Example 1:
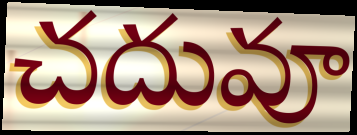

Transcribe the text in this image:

చదువూ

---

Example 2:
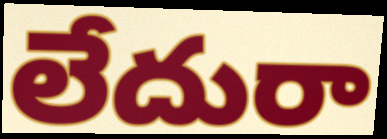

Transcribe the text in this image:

లేదురా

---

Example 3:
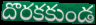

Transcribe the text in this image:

దొరకకుండ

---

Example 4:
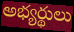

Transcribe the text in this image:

అభ్యర్థులు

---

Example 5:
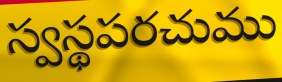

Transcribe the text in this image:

స్వస్థపరచుము